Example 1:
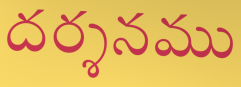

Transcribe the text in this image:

దర్శనము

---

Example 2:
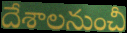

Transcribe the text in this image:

దేశాలనుంచీ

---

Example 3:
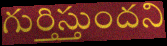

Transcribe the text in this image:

గుర్తిస్తుందని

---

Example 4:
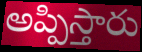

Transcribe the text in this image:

అప్పిస్తారు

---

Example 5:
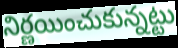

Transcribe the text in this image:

నిర్ణయించుకున్నట్టు